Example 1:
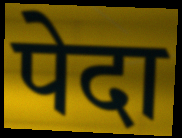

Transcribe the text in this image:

पेदा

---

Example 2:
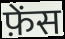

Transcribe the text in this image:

फ़ेंस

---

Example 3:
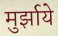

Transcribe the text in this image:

मुर्झाये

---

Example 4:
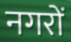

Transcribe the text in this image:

नगरों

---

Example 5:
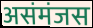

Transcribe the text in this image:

असंमंजस